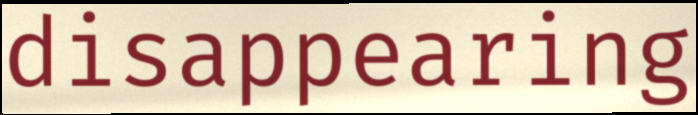
disappearing